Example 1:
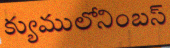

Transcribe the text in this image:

క్యుములోనింబస్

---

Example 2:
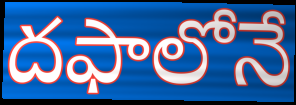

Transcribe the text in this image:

దఫాలోనే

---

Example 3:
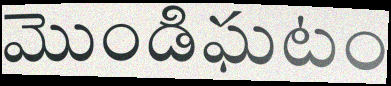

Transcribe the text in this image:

మొండిఘటం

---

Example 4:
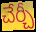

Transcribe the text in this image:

చేర్చీ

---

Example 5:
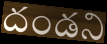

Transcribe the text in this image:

దండని